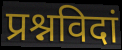
प्रश्नविदां